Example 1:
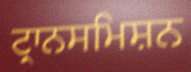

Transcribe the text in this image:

ਟ੍ਰਾਨਸਮਿਸ਼ਨ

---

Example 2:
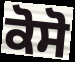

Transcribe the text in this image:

ਕੋਸੋ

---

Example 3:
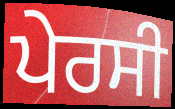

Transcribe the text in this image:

ਪੇਰਸੀ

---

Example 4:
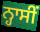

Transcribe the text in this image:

ਨ੍ਹਾਸੀਂ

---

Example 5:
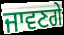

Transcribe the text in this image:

ਜਾਵਣਗੇ